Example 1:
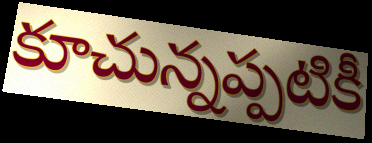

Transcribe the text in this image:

కూచున్నప్పటికీ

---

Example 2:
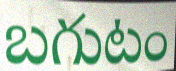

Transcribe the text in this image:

బగుటం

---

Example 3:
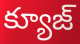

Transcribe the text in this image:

క్యూజ్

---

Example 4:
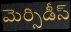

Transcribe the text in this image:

మెర్సిడీస్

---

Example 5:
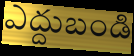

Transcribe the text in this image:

ఎద్దుబండి